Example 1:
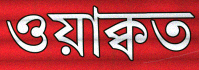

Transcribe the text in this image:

ওয়াক্বত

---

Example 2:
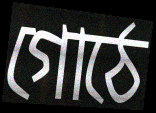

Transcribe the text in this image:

গোঠে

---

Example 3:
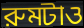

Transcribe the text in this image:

রুমটাও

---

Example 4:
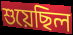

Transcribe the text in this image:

শুয়েছিল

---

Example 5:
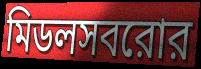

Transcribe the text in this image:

মিডলসবরোর